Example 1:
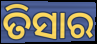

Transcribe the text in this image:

ତିସାର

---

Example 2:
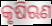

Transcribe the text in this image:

କୃଷିଋଣ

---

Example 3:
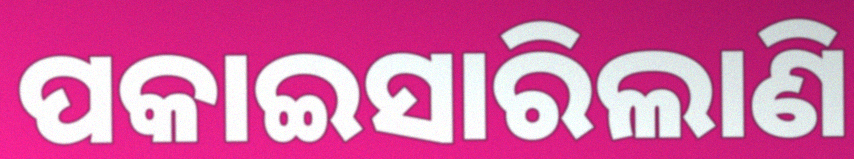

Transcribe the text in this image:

ପକାଇସାରିଲାଣି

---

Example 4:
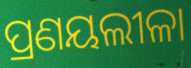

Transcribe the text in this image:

ପ୍ରଣୟଲୀଳା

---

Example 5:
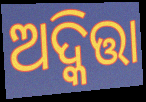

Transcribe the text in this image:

ଅଦ୍କିତ୍ତା